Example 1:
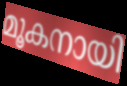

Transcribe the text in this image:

മൂകനായി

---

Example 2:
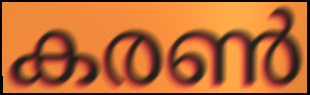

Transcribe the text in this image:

കരൺ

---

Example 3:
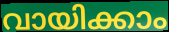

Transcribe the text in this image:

വായിക്കാം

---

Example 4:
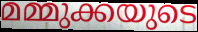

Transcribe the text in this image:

മമ്മുക്കയുടെ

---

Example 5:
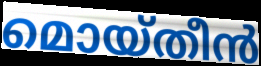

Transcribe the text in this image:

മൊയ്തീൻ